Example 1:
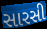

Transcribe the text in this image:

સારસી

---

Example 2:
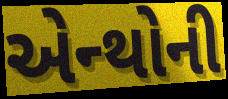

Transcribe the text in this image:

એન્થોની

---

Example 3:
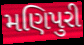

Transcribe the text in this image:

મણિપુરી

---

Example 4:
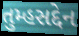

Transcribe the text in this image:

તુમ્હસદ્દેન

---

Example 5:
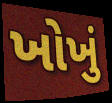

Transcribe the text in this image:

ખોખું